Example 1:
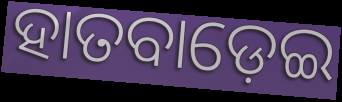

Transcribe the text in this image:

ହାତବାଡ଼େଇ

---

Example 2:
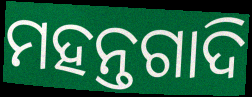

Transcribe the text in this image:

ମହନ୍ତଗାଦି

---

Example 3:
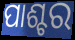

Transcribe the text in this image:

ପାଶ୍ଚର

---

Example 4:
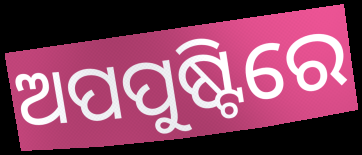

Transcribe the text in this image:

ଅପପୁଷ୍ଟିରେ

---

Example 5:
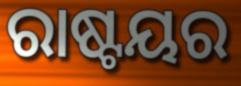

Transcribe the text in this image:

ରାଷ୍ଟୟର